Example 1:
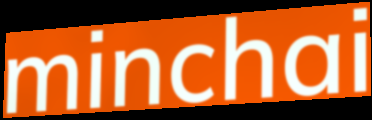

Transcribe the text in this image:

minchai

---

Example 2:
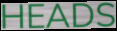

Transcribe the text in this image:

HEADS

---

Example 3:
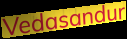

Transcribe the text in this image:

Vedasandur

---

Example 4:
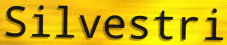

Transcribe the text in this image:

Silvestri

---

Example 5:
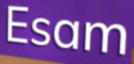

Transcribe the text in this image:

Esam